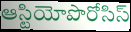
ఆస్టియోపొరోసిస్